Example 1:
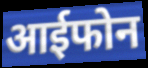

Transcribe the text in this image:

आईफोन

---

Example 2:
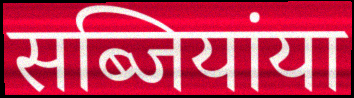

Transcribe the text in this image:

सब्जियांया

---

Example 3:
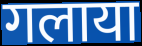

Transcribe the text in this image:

गलाया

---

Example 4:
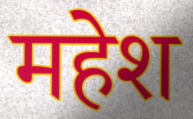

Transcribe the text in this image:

महेश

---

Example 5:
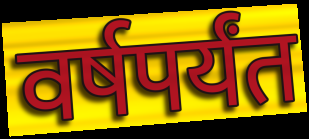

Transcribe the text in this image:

वर्षपर्यंत